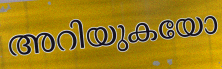
അറിയുകയോ